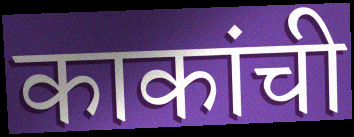
काकांची